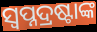
ସ୍ୱପ୍ନଦ୍ରଷ୍ଟାଙ୍କ